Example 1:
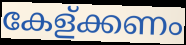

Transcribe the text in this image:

കേള്ക്കണം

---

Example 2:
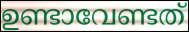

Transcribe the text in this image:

ഉണ്ടാവേണ്ടത്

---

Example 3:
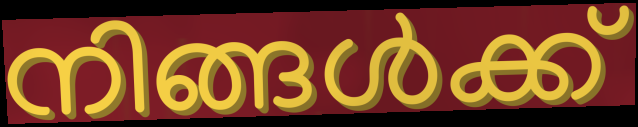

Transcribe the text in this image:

നിങ്ങൾക്ക്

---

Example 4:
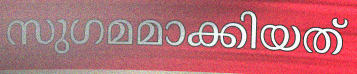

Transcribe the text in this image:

സുഗമമാക്കിയത്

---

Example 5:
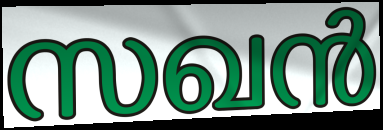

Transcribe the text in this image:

സഖൻ